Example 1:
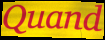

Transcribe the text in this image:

Quand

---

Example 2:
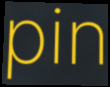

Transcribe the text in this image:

pin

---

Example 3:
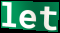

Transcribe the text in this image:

let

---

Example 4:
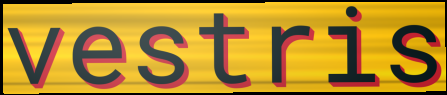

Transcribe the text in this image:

vestris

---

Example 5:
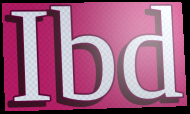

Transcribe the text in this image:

Ibd